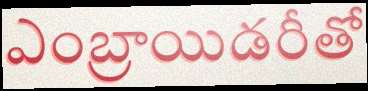
ఎంబ్రాయిడరీతో